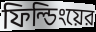
ফিল্ডিংয়ের